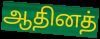
ஆதினத்